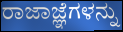
ರಾಜಾಜ್ಞೆಗಳನ್ನು